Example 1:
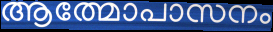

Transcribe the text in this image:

ആത്മോപാസനം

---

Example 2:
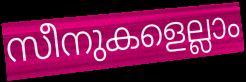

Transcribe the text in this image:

സീനുകളെല്ലാം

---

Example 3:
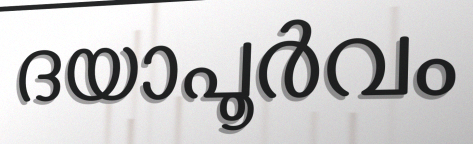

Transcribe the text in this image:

ദയാപൂർവം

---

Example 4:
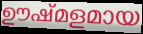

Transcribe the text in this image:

ഊഷ്‌മളമായ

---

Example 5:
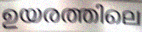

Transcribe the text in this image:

ഉയരത്തിലെ